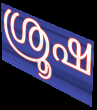
ശ്രൂഷ